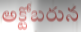
అక్టోబరున